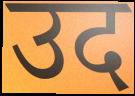
उद